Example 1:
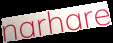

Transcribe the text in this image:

narhare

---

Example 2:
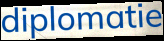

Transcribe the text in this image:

diplomatie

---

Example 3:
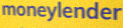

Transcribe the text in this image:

moneylender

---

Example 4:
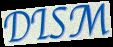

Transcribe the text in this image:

DISM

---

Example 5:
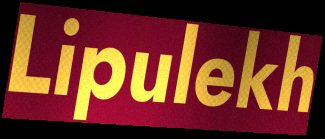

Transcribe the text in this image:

Lipulekh